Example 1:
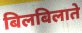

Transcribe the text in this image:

बिलबिलाते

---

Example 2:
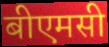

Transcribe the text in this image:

बीएमसी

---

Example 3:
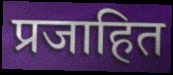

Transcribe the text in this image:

प्रजाहित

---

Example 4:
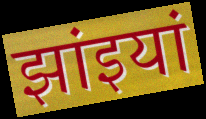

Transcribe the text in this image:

झांइयां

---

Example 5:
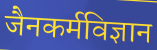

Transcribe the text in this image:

जैनकर्मविज्ञान